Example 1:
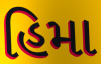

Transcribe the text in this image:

હિમા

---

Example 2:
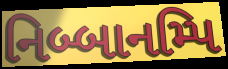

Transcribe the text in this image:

નિબ્બાનમ્પિ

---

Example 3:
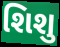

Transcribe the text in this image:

શિશુ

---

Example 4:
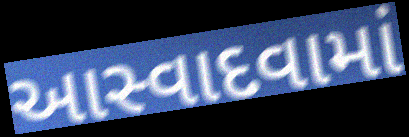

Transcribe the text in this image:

આસ્વાદવામાં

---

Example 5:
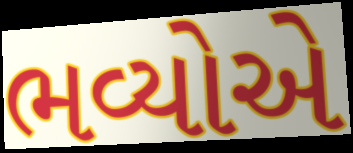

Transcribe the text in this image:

ભવ્યોએ